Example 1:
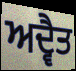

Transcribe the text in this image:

ਅਦ੍ਵੈਤ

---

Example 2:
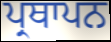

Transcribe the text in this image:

ਪ੍ਰਥਾਪਨ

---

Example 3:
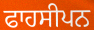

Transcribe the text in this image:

ਫਾਹਸੀਪਨ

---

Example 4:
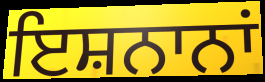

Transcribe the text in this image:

ਇਸ਼ਨਾਨਾਂ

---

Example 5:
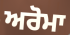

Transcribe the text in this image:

ਅਰੋਮਾ